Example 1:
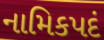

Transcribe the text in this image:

નામિકપદં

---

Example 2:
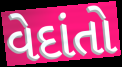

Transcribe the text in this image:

વેદાંતો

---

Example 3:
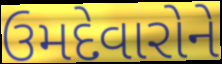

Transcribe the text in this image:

ઉમદેવારોને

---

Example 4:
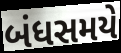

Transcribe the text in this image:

બંધસમયે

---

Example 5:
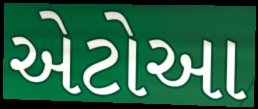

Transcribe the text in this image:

એટોઆ